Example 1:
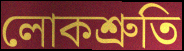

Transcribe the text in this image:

লোকশ্রুতি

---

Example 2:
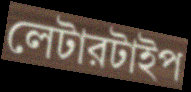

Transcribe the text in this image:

লেটারটাইপ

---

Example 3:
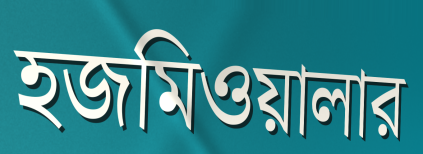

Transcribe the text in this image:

হজমিওয়ালার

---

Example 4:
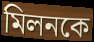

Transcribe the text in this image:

মিলনকে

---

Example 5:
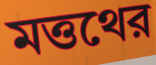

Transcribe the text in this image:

মত্তথের